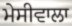
ਮੇਸੀਵਾਲਾ